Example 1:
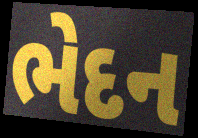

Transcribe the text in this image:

ભેદન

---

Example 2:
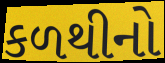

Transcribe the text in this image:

કળથીનો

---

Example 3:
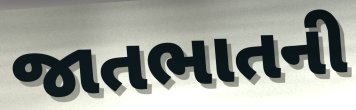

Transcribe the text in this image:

જાતભાતની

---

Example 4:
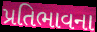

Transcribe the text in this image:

પ્રતિભાવના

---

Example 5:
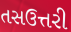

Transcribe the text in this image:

તસઉત્તરી